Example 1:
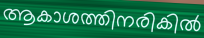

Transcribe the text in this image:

ആകാശത്തിനരികിൽ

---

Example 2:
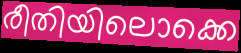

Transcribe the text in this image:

രീതിയിലൊക്കെ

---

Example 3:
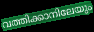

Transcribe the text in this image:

വത്തിക്കാനിലേയും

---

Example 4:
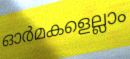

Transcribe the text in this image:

ഓർമകളെല്ലാം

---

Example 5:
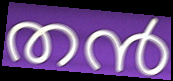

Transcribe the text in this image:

തൻ